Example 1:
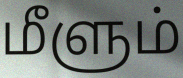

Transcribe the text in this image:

மீளும்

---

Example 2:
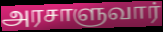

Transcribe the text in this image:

அரசாளுவார்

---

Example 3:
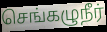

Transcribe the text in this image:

செங்கழுநீர்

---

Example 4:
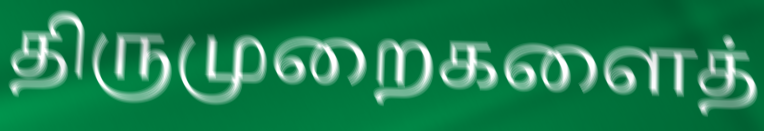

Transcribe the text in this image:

திருமுறைகளைத்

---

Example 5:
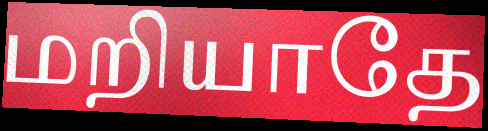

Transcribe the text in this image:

மறியாதே